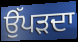
ਉੱਪੜਦਾ